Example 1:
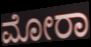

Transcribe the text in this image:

ಮೋರಾ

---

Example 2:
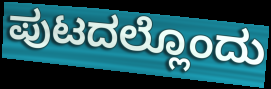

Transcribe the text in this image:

ಪುಟದಲ್ಲೊಂದು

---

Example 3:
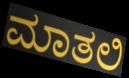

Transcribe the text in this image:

ಮಾತಲಿ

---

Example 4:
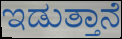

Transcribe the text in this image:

ಇಡುತ್ತಾನೆ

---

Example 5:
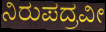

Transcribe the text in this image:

ನಿರುಪದ್ರವೀ